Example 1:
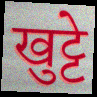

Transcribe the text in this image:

खुट्टे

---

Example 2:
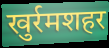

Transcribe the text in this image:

खुर्रमशहर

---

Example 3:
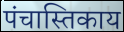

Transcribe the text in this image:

पंचास्तिकाय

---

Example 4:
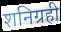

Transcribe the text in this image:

शनिग्रही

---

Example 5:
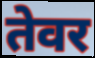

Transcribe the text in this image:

तेवर